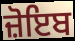
ਜ਼ੋਇਬ